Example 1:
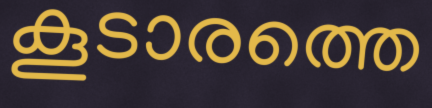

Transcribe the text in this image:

കൂടാരത്തെ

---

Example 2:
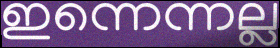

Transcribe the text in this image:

ഇന്നെന്നല്ല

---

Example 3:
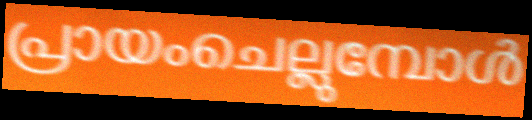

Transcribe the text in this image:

പ്രായംചെല്ലുമ്പോൾ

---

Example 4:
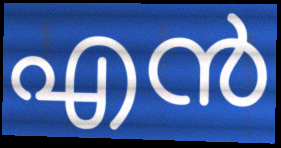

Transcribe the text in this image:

എൻ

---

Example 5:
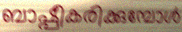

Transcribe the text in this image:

ബാഷ്പീകരിക്കുമ്പോൾ